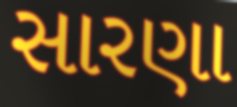
સારણા